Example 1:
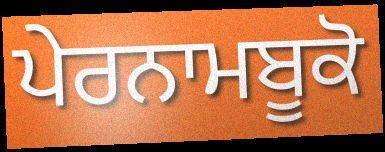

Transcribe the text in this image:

ਪੇਰਨਾਮਬੂਕੋ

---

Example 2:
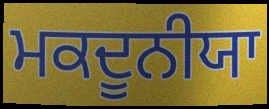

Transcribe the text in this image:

ਮਕਦੂਨੀਯਾ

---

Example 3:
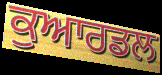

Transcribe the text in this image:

ਕੁਆਰਡਲ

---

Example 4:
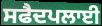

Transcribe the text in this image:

ਸਫੈਦਪਲਾਈ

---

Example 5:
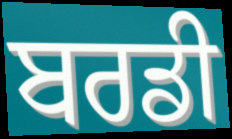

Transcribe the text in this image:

ਬਰਡੀ